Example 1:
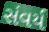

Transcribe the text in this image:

સંવર્ય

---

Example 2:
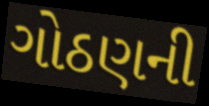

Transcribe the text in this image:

ગોઠણની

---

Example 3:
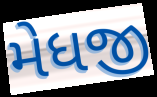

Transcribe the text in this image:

મેધજી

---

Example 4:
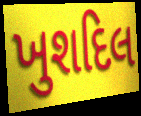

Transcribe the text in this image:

ખુશદિલ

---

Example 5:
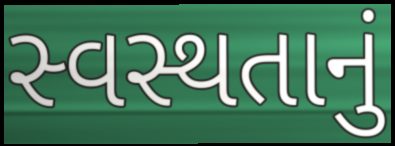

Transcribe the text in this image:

સ્વસ્થતાનું